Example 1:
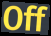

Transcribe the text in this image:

Off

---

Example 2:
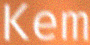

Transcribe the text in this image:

Kem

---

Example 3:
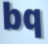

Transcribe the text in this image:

bq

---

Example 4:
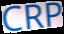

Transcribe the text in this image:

CRP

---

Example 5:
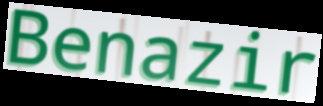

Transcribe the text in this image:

Benazir